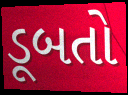
ડૂબતો